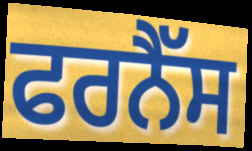
ਫਰਨੈੱਸ